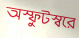
অস্ফুটস্বরে